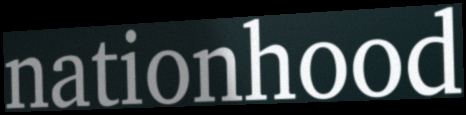
nationhood